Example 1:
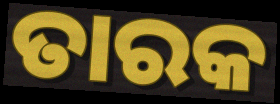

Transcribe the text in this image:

ତାରକ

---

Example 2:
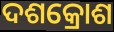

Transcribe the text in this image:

ଦଶକ୍ରୋଶ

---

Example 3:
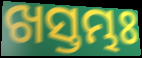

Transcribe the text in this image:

ଖସ୍ତମ୍ଭଃ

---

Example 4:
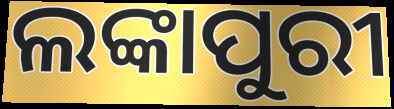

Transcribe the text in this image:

ଲଙ୍କାପୁରୀ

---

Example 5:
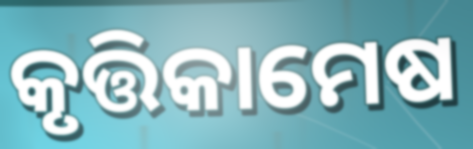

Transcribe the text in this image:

କୃତ୍ତିକାମେଷ